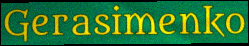
Gerasimenko